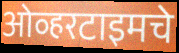
ओव्हरटाइमचे